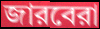
জারবেরা